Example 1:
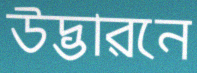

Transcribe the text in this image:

উদ্ভাৱনে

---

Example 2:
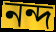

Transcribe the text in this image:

নন্দ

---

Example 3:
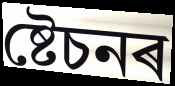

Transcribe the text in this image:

ষ্টেচনৰ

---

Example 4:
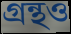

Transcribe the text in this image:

গ্ৰন্থও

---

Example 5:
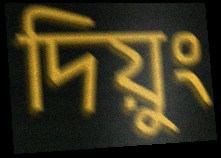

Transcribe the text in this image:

দিয়ুং